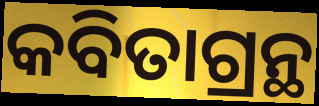
କବିତାଗ୍ରନ୍ଥ